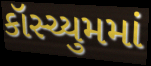
કૉસ્ચ્યુમમાં